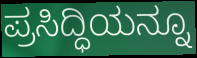
ಪ್ರಸಿದ್ಧಿಯನ್ನೂ